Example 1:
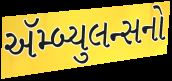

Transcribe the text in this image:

ઍમ્બ્યુલન્સનો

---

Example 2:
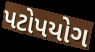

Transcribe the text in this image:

પટોપયોગ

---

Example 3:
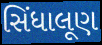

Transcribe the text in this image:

સિંધાલૂણ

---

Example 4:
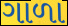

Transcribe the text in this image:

ગાળા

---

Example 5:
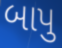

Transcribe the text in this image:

બાપુ